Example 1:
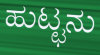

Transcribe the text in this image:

ಹುಟ್ಟನು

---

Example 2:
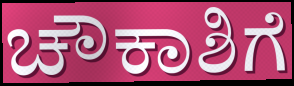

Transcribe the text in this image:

ಚೌಕಾಶಿಗೆ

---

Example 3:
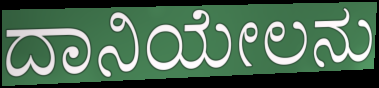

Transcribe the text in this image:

ದಾನಿಯೇಲನು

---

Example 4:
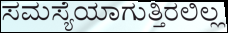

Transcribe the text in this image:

ಸಮಸ್ಯೆಯಾಗುತ್ತಿರಲಿಲ್ಲ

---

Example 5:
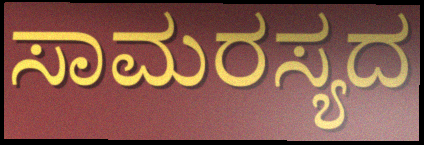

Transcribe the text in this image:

ಸಾಮರಸ್ಯದ